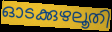
ഓടക്കുഴലൂതി